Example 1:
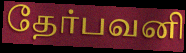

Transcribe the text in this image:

தேர்பவனி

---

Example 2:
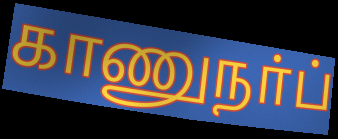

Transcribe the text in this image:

காணுநர்ப்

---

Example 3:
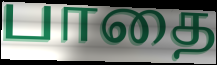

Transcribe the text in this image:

பாதை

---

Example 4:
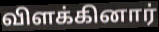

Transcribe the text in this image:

விளக்கினார்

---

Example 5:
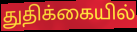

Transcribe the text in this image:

துதிக்கையில்